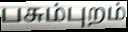
பசும்புறம்